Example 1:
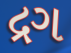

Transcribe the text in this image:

દ્રગ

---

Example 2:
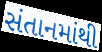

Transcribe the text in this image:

સંતાનમાંથી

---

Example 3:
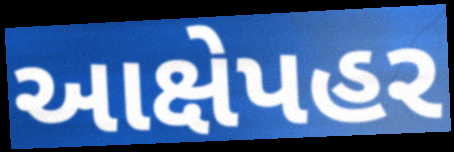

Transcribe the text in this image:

આક્ષેપહર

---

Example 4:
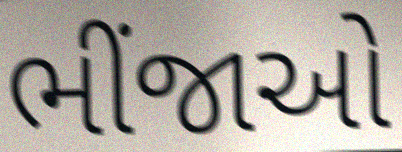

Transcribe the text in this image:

ભીંજાઓ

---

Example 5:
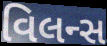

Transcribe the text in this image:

વિલન્સ